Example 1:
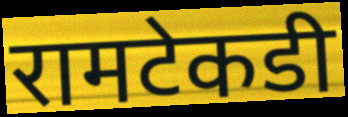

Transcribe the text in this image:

रामटेकडी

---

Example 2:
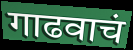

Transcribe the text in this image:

गाढवाचं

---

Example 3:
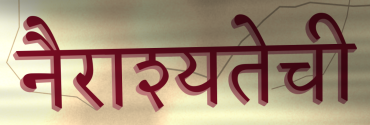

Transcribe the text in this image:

नैराश्यतेची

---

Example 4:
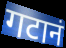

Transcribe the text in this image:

गटानं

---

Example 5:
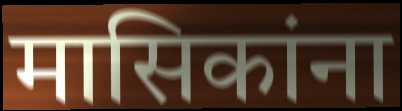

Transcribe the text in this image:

मासिकांना